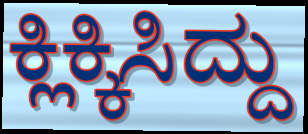
ಕ್ಲಿಕ್ಕಿಸಿದ್ದು